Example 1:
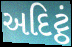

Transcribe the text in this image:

અદિટ્ઠં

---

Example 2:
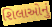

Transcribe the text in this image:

શિલાઓનું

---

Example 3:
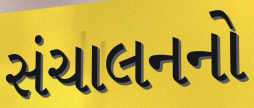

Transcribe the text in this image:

સંચાલનનો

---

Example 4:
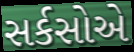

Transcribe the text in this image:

સર્કસોએ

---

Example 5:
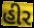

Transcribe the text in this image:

હીર